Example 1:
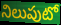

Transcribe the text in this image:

నిలుపుటో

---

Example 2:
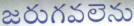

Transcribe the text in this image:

జరుగవలెను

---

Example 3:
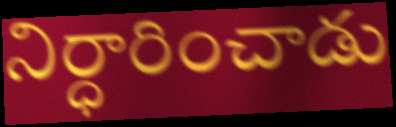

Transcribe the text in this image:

నిర్ధారించాడు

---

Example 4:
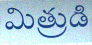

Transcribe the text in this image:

మిత్రుడి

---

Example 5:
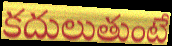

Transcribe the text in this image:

కదులుతుంటే